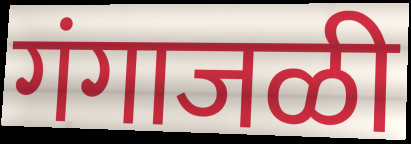
गंगाजळी